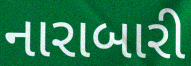
નારાબારી